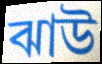
ঝাউ